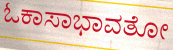
ಓಕಾಸಾಭಾವತೋ